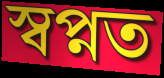
স্বপ্নত